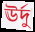
ঊর্দু